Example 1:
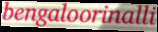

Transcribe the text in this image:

bengaloorinalli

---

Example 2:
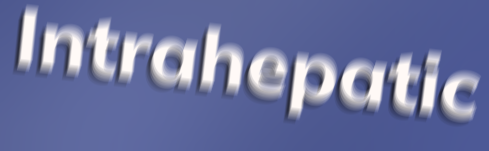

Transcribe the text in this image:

Intrahepatic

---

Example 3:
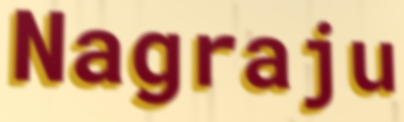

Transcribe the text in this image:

Nagraju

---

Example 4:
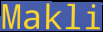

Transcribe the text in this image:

Makli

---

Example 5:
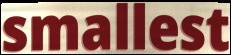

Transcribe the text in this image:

smallest